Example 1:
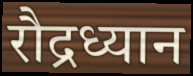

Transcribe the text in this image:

रौद्रध्यान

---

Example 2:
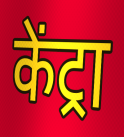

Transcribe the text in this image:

केंट्रा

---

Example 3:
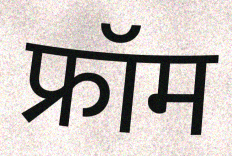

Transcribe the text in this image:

फ्रॉम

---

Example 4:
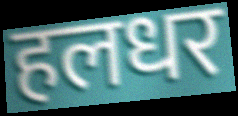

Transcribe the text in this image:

हलधर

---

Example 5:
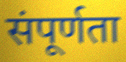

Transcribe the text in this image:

संपूर्णता